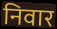
निवार